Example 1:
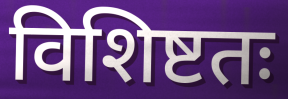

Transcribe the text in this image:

विशिष्टतः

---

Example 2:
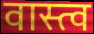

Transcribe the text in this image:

वास्त्व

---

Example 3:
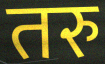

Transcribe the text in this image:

तरु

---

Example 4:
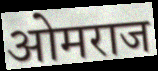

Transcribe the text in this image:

ओमराज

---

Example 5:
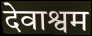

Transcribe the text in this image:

देवाश्वम